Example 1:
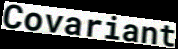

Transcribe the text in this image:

Covariant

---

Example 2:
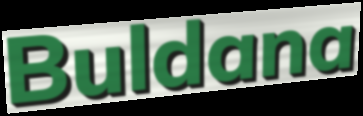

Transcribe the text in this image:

Buldana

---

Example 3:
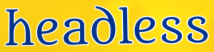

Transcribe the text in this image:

headless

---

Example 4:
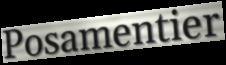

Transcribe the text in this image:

Posamentier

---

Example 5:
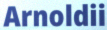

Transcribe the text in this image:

Arnoldii